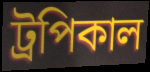
ট্রপিকাল